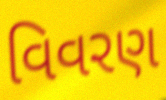
વિવરણ